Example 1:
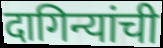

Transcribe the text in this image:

दागिन्यांची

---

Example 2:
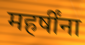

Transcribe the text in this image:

महर्षींना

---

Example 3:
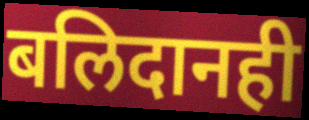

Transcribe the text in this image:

बलिदानही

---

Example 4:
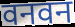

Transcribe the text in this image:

वनवन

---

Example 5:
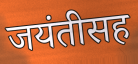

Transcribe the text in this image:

जयंतीसह